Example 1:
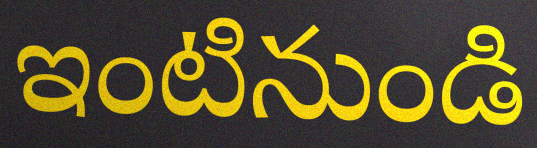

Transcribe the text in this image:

ఇంటినుండి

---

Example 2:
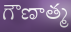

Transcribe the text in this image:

గౌణాత్మ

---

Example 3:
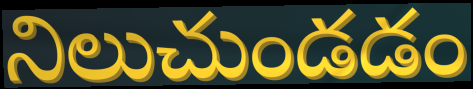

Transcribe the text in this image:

నిలుచుండడం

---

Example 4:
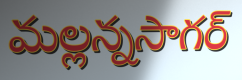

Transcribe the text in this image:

మల్లన్నసాగర్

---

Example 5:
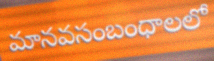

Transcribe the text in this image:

మానవసంబంధాలలో